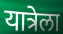
यात्रेला